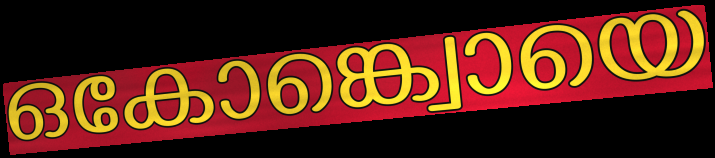
ഒകോങ്ക്വൊയെ